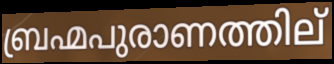
ബ്രഹ്മപുരാണത്തില്